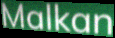
Malkan